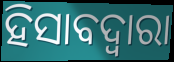
ହିସାବଦ୍ଵାରା